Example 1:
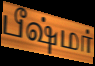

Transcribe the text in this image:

பீஷ்மர்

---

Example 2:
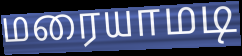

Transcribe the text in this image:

மரையாமடி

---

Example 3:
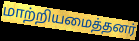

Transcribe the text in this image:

மாற்றியமைத்தனர்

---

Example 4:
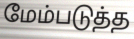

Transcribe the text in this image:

மேம்படுத்த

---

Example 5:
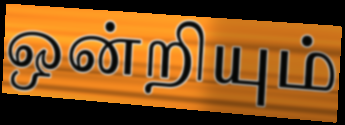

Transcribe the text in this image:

ஒன்றியும்